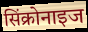
सिंक्रोनाइज